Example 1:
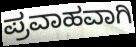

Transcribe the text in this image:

ಪ್ರವಾಹವಾಗಿ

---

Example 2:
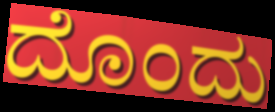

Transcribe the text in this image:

ದೊಂದು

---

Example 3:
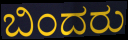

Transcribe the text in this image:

ಬಿಂದರು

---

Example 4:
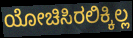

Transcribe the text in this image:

ಯೋಚಿಸಿರಲಿಕ್ಕಿಲ್ಲ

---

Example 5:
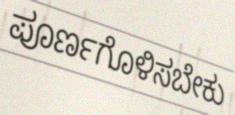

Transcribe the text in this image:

ಪೂರ್ಣಗೊಳಿಸಬೇಕು